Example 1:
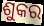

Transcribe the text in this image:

ଶୁକର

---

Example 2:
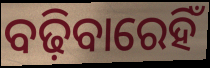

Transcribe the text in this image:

ବଢ଼ିବାରେହିଁ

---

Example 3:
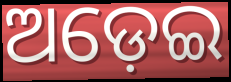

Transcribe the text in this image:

ଅଡ଼େଇ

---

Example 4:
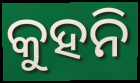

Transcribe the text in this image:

କୁହନି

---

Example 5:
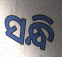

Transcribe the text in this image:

ସନ୍ଧି